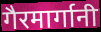
गैरमार्गानी